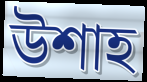
উশাহ